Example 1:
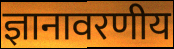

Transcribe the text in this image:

ज्ञानावरणीय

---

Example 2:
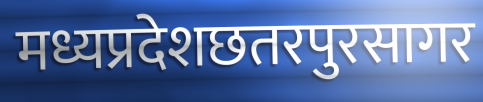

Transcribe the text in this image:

मध्यप्रदेशछतरपुरसागर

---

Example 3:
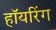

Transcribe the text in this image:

हॉयरिंग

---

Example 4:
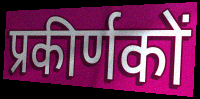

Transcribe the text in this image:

प्रकीर्णकों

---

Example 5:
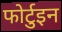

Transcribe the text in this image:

फोर्टुइन